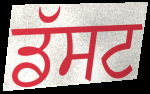
ਡੱਸਟ